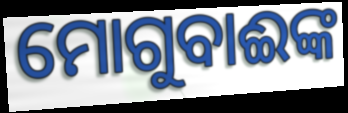
ମୋଗୁବାଈଙ୍କ